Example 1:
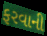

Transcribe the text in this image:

ફરવાની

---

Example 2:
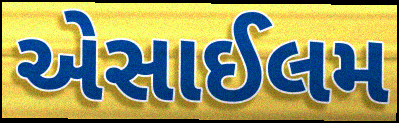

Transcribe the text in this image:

એસાઈલમ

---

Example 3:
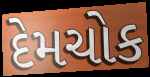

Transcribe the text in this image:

દેમચોક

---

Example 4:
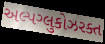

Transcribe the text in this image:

અલ્પગ્લુકોઝરક્ત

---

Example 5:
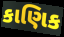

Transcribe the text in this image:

કાણિક